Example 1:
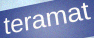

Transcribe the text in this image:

teramat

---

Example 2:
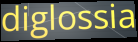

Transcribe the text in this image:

diglossia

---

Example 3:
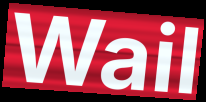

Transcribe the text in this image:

Wail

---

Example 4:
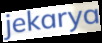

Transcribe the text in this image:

jekarya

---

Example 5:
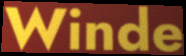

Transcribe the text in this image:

Winde